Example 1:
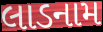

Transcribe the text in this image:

લાડનામ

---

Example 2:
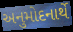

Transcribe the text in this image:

અનુમોદનાર્થે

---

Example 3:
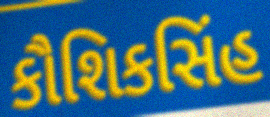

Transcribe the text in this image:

કૌશિકસિંહ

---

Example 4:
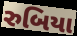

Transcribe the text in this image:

રુબિયા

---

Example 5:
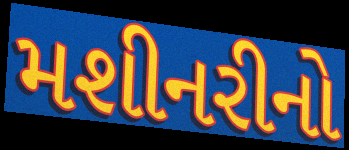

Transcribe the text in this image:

મશીનરીનો